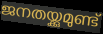
ജനതയ്ക്കുമുണ്ട്